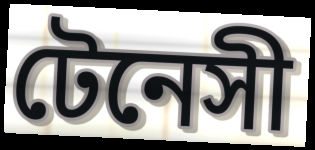
টেনেসী